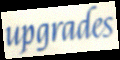
upgrades